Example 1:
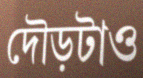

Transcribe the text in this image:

দৌড়টাও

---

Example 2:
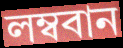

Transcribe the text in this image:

লম্ববান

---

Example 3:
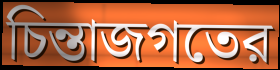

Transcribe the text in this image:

চিন্তাজগতের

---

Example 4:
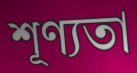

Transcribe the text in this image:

শূণ্যতা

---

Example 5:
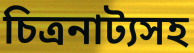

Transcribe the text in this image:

চিত্রনাট্যসহ